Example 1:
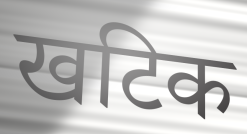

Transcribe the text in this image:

खटिक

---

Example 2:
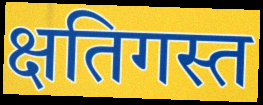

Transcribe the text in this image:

क्षतिगस्त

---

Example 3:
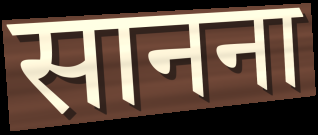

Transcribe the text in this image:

सानना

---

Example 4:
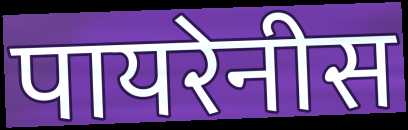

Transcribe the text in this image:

पायरेनीस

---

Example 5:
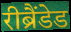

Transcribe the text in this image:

रीब्रैंडेड